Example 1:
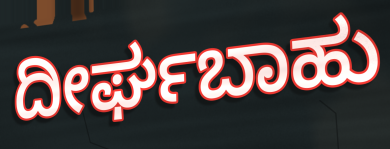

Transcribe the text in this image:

ದೀರ್ಘಬಾಹು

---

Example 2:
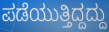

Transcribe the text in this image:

ಪಡೆಯುತ್ತಿದ್ದದ್ದು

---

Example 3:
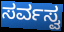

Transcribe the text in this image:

ಸರ್ವಸ್ವ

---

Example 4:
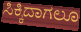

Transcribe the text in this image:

ಸಿಕ್ಕಿದಾಗಲೂ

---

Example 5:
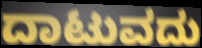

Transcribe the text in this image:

ದಾಟುವದು